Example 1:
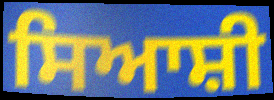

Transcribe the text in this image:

ਸਿਆਸ਼ੀ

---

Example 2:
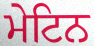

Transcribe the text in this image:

ਮੇਟਿਨ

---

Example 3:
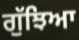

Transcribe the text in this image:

ਗੁੱਝਿਆ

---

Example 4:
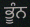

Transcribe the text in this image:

ਭੂੰਨ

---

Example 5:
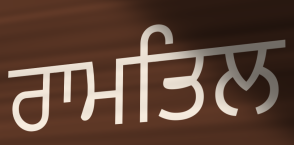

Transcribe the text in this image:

ਰਾਮਤਿਲ